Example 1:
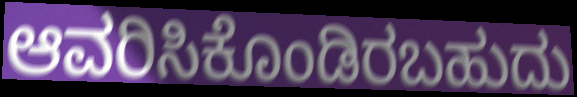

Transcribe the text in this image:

ಆವರಿಸಿಕೊಂಡಿರಬಹುದು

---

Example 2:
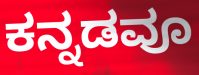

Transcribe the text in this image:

ಕನ್ನಡವೂ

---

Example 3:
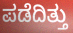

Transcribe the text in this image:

ಪಡೆದಿತ್ತು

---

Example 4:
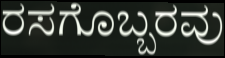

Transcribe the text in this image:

ರಸಗೊಬ್ಬರವು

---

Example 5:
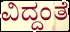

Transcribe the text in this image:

ವಿದ್ದಂತೆ